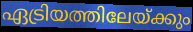
ഏട്രിയത്തിലേയ്ക്കും